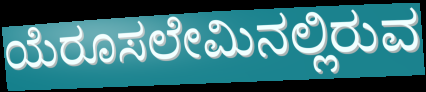
ಯೆರೂಸಲೇಮಿನಲ್ಲಿರುವ